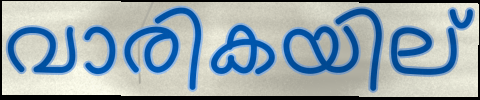
വാരികയില്